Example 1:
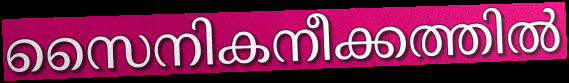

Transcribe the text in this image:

സൈനികനീക്കത്തിൽ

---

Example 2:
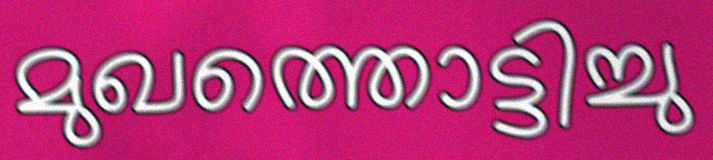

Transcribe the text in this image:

മുഖത്തൊട്ടിച്ചു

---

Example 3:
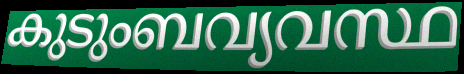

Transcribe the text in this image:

കുടുംബവ്യവസ്ഥ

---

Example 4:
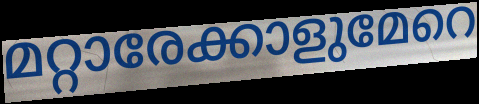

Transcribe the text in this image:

മറ്റാരേക്കാളുമേറെ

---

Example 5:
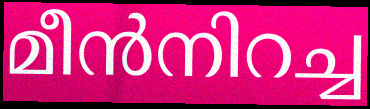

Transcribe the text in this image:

മീൻനിറച്ച